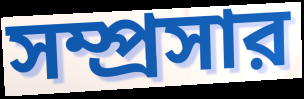
সম্প্রসার